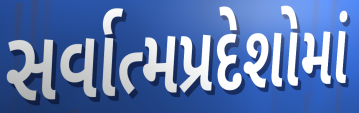
સર્વાત્મપ્રદેશોમાં